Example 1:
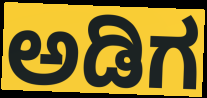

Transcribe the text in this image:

ಅಡಿಗ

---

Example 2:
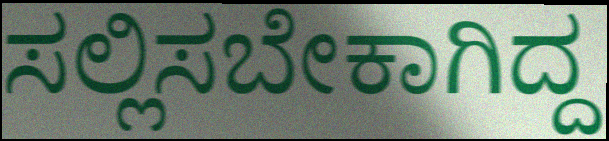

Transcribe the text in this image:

ಸಲ್ಲಿಸಬೇಕಾಗಿದ್ದ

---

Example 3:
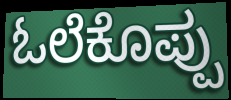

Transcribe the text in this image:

ಓಲೆಕೊಪ್ಪು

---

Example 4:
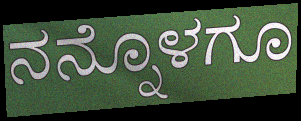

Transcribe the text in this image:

ನನ್ನೊಳಗೂ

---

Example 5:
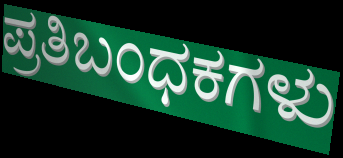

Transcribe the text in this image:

ಪ್ರತಿಬಂಧಕಗಳು